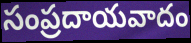
సంప్రదాయవాదం